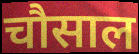
चौसाल